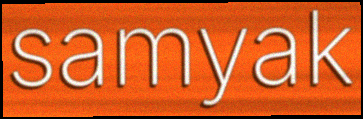
samyak